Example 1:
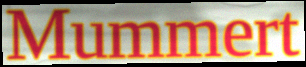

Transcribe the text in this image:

Mummert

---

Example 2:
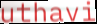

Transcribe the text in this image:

uthavi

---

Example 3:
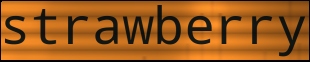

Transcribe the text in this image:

strawberry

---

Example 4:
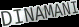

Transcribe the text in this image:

DINAMANI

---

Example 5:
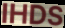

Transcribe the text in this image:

IHDS